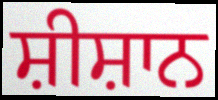
ਸ਼ੀਸ਼ਾਨ